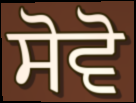
ਸੋਵੋ